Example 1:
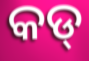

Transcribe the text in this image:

କଡ୍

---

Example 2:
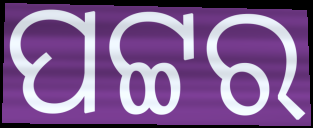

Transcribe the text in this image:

ପଟ୍ଟର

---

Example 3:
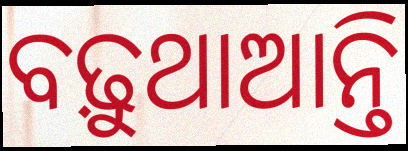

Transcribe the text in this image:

ବଢ଼ୁଥାଆନ୍ତି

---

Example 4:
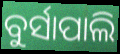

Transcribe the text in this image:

ବୁର୍ସାପାଲି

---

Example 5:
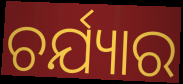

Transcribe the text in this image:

ଚର୍ଯ୍ୟାର